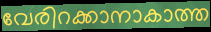
വേരിറക്കാനാകാത്ത